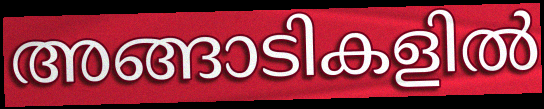
അങ്ങാടികളിൽ